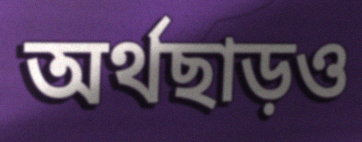
অর্থছাড়ও